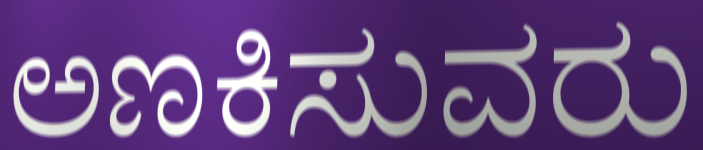
ಅಣಕಿಸುವರು